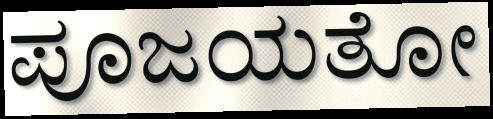
ಪೂಜಯತೋ